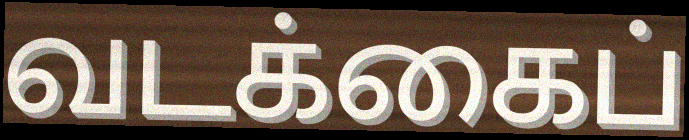
வடக்கைப்